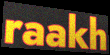
raakh